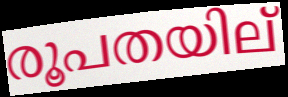
രൂപതയില്